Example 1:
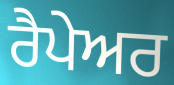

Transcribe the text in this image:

ਰੈਪੇਅਰ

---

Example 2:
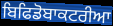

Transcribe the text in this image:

ਬਿਫਿਡੋਬਾਕਟਰੀਆ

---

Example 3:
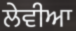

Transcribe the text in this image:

ਲੇਵੀਆ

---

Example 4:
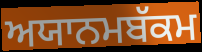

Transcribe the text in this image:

ਅਯਾਨਮਬੱਕਮ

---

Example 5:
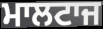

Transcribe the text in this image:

ਮਾਲਟਾਜ